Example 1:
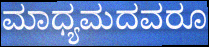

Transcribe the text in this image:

ಮಾಧ್ಯಮದವರೂ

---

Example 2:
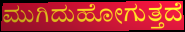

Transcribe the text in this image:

ಮುಗಿದುಹೋಗುತ್ತದೆ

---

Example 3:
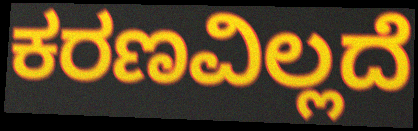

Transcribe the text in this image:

ಕರಣವಿಲ್ಲದೆ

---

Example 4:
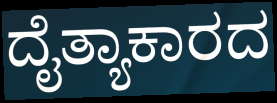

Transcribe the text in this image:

ದೈತ್ಯಾಕಾರದ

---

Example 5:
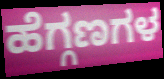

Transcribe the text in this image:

ಹೆಗ್ಗಣಗಳ